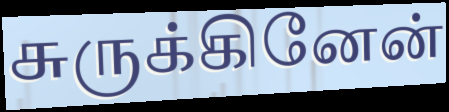
சுருக்கினேன்